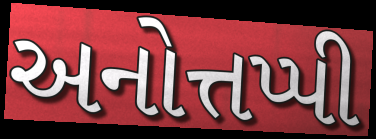
અનોત્તપ્પી